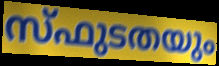
സ്ഫുടതയും